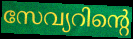
സേവ്യറിന്റെ